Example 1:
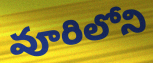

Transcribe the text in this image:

వూరిలోని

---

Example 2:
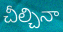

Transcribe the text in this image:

చీల్చినా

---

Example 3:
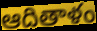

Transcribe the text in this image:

ఆదితాళం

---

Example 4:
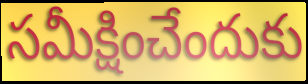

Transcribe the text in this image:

సమీక్షించేందుకు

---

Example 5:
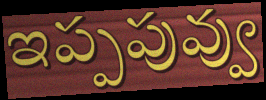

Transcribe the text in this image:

ఇప్పపువ్వు